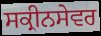
ਸਕ੍ਰੀਨਸੇਵਰ